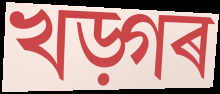
খড়্গৰ